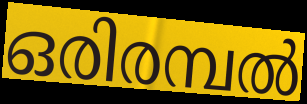
ഒരിരമ്പൽ